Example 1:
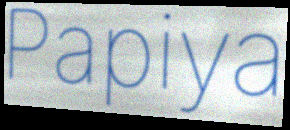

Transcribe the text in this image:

Papiya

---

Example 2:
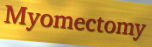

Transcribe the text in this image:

Myomectomy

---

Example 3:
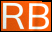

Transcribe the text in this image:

RB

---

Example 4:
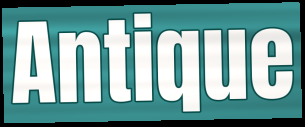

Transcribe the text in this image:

Antique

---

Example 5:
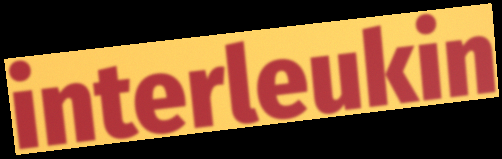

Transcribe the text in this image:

interleukin